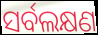
ସର୍ବଲକ୍ଷଣ